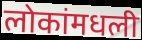
लोकांमधली